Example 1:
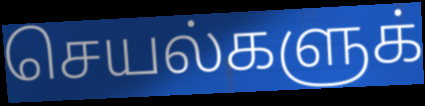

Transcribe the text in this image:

செயல்களுக்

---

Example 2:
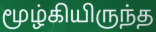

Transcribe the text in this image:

மூழ்கியிருந்த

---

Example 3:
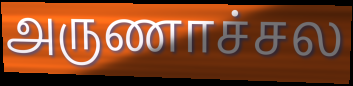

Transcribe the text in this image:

அருணாச்சல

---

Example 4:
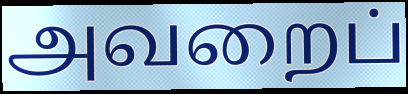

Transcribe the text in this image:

அவறைப்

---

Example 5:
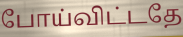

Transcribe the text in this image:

போய்விட்டதே